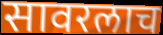
सावरलाच